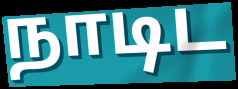
நாடிட